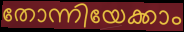
തോന്നിയേക്കാം